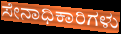
ಸೇನಾಧಿಕಾರಿಗಳು